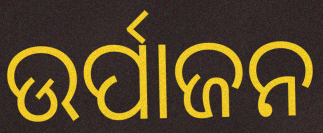
ଉର୍ପାଜନ